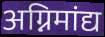
अग्निमांद्य